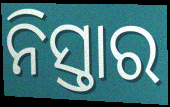
ନିସ୍ତାର